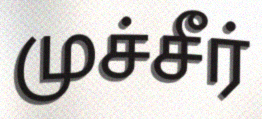
முச்சீர்